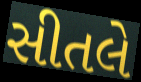
સીતલે